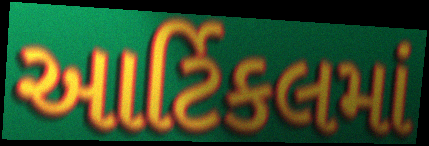
આર્ટિકલમાં